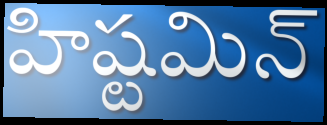
హిష్టమిన్